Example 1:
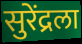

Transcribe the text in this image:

सुरेंद्रला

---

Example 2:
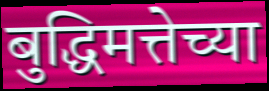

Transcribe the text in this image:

बुद्धिमत्तेच्या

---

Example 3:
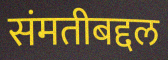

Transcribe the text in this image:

संमतीबद्दल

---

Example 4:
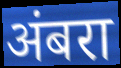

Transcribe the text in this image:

अंबरा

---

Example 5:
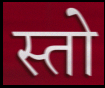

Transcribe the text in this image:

स्तो